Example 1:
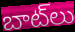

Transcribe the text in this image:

బాట్‌లు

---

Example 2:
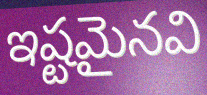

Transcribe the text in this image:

ఇష్టమైనవి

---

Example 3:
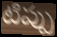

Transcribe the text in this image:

టిప్పు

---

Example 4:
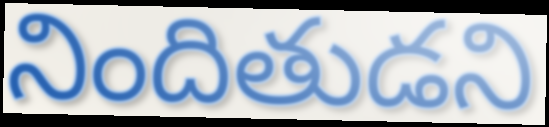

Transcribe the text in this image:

నిందితుడని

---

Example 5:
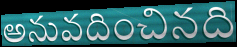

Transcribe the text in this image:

అనువదించినది